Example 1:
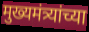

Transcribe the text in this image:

मुख्यमंत्र्यांच्या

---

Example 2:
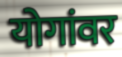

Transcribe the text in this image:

योगांवर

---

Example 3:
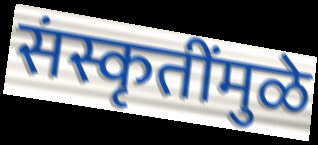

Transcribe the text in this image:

संस्कृतींमुळे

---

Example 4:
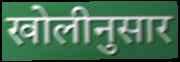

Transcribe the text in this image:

खोलीनुसार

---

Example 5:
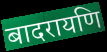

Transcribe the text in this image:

बादरायणि